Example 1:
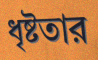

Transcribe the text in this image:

ধৃষ্টতার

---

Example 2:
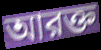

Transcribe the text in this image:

আরক্ত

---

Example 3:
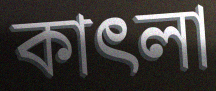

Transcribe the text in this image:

কাৎলা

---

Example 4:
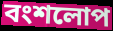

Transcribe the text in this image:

বংশলোপ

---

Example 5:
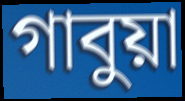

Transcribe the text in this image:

গাবুয়া